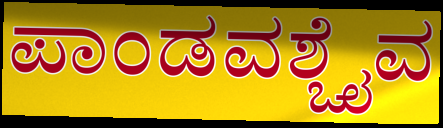
ಪಾಂಡವಶ್ಚೈವ